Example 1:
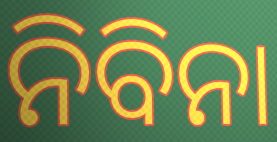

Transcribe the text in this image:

ନିବିନା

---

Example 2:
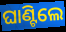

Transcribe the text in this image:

ଘାଣ୍ଟିଲେ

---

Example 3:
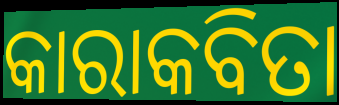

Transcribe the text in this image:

କାରାକବିତା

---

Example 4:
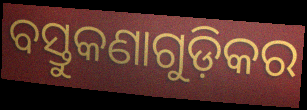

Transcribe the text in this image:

ବସ୍ତୁକଣାଗୁଡ଼ିକର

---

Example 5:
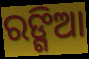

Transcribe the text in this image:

ରଙ୍ଗିଆ